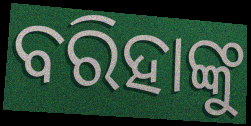
ବରିହାଙ୍କୁ